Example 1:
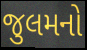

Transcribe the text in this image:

જુલમનો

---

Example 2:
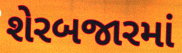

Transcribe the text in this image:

શેરબજારમાં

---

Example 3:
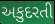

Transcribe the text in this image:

અકુદરતી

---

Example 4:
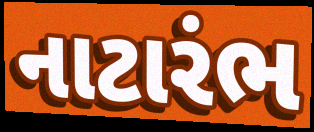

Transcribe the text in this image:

નાટારંભ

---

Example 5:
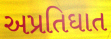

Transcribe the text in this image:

અપ્રતિઘાત